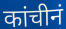
कांचीनं